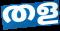
തള